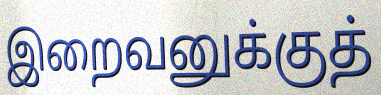
இறைவனுக்குத்